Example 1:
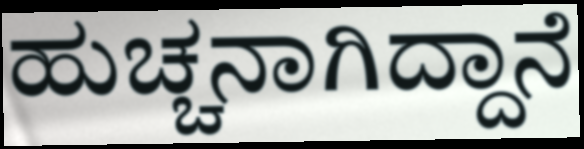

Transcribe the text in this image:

ಹುಚ್ಚನಾಗಿದ್ದಾನೆ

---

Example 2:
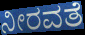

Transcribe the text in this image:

ನೀರವತೆ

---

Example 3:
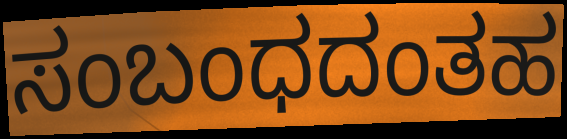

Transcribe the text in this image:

ಸಂಬಂಧದಂತಹ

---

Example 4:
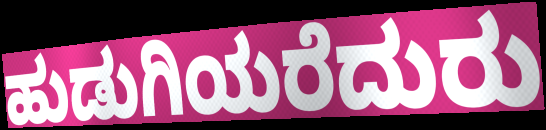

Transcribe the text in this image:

ಹುಡುಗಿಯರೆದುರು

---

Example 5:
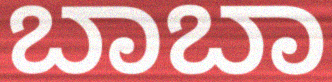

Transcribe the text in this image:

ಬಾಬಾ